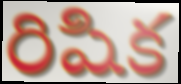
రిషిక